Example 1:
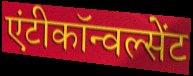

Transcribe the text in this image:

एंटीकॉन्वल्सेंट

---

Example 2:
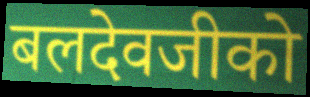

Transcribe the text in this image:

बलदेवजीको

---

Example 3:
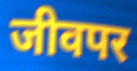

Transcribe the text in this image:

जीवपर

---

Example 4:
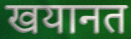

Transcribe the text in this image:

खयानत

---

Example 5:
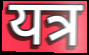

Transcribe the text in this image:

यत्र